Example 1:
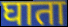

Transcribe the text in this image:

घाता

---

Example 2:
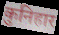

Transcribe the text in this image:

कुनिहार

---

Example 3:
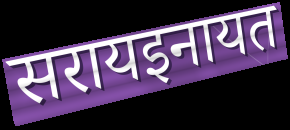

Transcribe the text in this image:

सरायइनायत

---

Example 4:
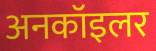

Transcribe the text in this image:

अनकॉइलर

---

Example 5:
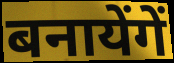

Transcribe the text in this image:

बनायेंगें